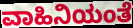
ವಾಹಿನಿಯಂತೆ